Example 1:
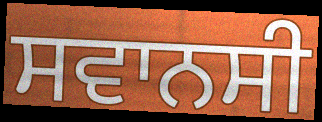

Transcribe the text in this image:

ਸਵਾਨਸੀ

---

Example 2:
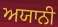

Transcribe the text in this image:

ਅਯਾਨੀ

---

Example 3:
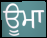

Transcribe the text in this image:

ਊਮਾ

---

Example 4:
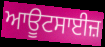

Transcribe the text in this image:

ਆਊਟਸਾਈਜ਼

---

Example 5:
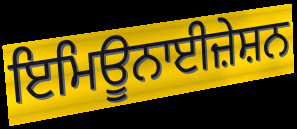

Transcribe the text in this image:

ਇਮਿਊਨਾਈਜ਼ੇਸ਼ਨ